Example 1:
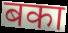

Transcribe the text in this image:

बका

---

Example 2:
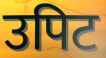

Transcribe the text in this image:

उपिट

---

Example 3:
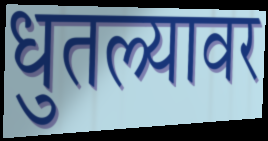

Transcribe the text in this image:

धुतल्यावर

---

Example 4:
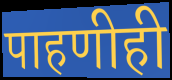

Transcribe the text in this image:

पाहणीही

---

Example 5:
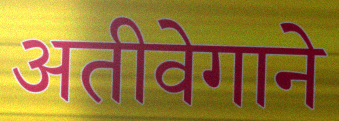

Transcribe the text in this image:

अतीवेगाने